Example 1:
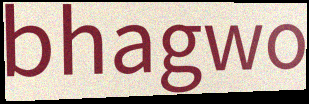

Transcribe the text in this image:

bhagwo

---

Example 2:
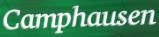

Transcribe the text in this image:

Camphausen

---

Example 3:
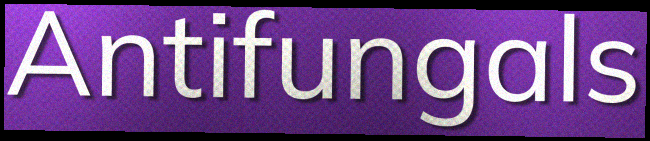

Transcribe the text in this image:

Antifungals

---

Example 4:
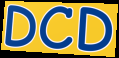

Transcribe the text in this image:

DCD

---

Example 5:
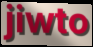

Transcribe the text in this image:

jiwto